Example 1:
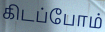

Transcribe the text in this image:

கிடப்போம்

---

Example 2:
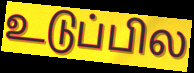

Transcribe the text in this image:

உடுப்பில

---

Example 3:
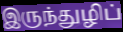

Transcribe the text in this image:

இருந்துழிப்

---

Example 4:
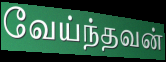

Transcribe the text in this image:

வேய்ந்தவன்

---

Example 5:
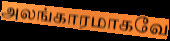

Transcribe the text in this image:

அலங்காரமாகவே